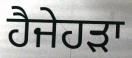
ਹੈਜੇਹੜਾ